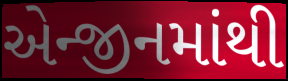
એન્જીનમાંથી